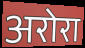
अरोरा